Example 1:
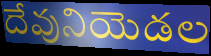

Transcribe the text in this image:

దేవునియెడల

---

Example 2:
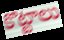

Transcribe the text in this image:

కొట్టాలు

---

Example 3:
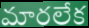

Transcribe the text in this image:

మారలేక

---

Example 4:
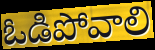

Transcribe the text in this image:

ఓడిపోవాలి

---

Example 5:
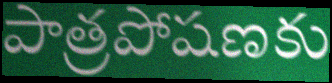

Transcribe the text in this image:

పాత్రపోషణకు